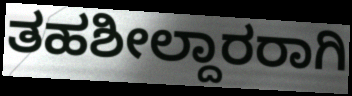
ತಹಶೀಲ್ದಾರರಾಗಿ